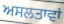
ਅਸਲਤਾਵਾਂ